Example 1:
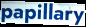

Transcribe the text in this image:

papillary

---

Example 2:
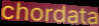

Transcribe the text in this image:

chordata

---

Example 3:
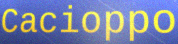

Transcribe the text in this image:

Cacioppo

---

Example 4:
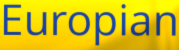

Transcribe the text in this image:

Europian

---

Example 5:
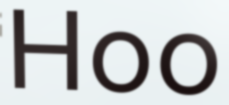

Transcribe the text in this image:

Hoo